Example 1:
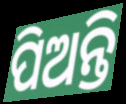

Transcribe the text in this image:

ପିଅନ୍ତି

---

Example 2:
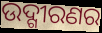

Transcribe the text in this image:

ଉଦ୍ଗୀରଣର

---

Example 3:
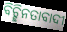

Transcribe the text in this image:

ବିଚ୍ଛିନତାବାଦୀ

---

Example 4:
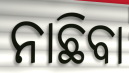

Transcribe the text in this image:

ନାଛିବା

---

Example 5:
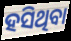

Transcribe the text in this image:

ହସିଥିବା